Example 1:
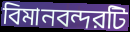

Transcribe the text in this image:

বিমানবন্দরটি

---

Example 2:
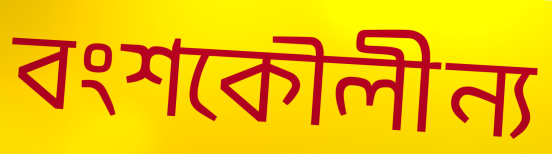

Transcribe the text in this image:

বংশকৌলীন্য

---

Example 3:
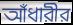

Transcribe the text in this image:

আঁধারীর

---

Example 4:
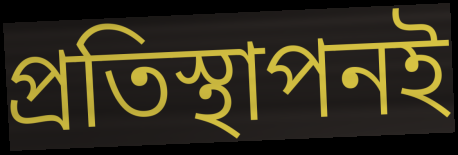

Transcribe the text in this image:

প্রতিস্থাপনই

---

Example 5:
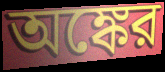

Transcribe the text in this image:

অঙ্কের